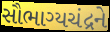
સૌભાગ્યચંદ્રને